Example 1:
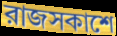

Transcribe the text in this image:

রাজসকাশে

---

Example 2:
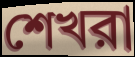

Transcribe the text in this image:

শেখরা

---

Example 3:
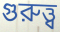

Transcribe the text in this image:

গুরুত্ত্ব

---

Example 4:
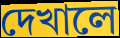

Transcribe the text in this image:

দেখালে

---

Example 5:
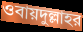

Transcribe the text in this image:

ওবায়দুল্লাহর